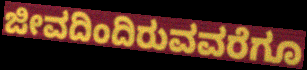
ಜೀವದಿಂದಿರುವವರೆಗೂ